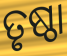
ତୃଷ୍ଠା